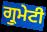
ਗ੍ਰੁਮੇਟੀ